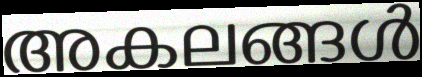
അകലങ്ങൾ